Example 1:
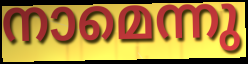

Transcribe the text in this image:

നാമെന്നു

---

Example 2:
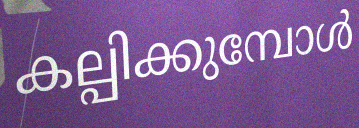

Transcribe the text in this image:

കല്പിക്കുമ്പോൾ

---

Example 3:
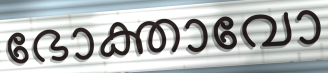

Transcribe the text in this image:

ഭോക്താവോ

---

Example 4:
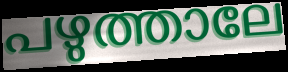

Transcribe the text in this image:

പഴുത്താലേ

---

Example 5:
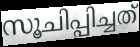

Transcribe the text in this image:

സൂചിപ്പിച്ചത്